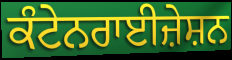
ਕੰਟੇਨਰਾਈਜ਼ੇਸ਼ਨ